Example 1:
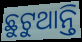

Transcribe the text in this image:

ଛୁଟୁଥାନ୍ତି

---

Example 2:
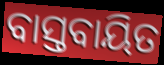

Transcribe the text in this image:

ବାସ୍ତବାୟିତ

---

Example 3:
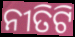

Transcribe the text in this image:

ନୀତିଟି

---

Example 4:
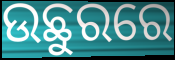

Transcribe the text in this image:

ଉଛୁରରେ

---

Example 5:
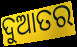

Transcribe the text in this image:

ଦୁଆତର